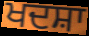
ਖਦਸ਼ਾ